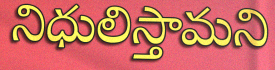
నిధులిస్తామని